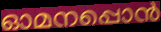
ഓമനപ്പൊൻ